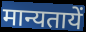
मान्यतायें